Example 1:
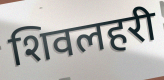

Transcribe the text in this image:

शिवलहरी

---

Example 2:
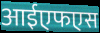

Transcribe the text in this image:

आईएफएस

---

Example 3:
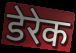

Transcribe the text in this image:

डेरेक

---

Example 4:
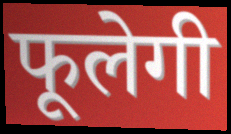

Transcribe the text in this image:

फूलेगी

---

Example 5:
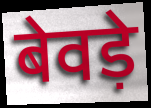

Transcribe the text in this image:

बेवड़े